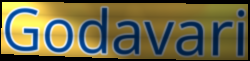
Godavari